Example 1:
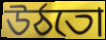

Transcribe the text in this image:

উঠতো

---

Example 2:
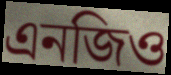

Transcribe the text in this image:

এনজিও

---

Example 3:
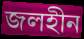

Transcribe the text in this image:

জলহীন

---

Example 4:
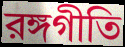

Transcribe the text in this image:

রঙ্গগীতি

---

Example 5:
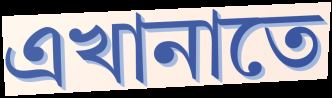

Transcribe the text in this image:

এখানাতে